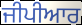
ਜੀਪੀਆਰ